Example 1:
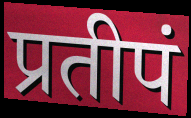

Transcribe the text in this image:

प्रतीपं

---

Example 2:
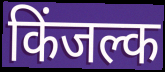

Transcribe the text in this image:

किंजल्क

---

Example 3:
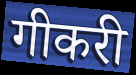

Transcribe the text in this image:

गीकरी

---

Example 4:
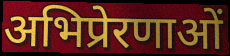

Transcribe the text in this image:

अभिप्रेरणाओं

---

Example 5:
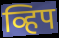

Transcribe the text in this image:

व्हिप